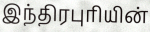
இந்திரபுரியின்